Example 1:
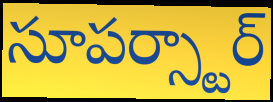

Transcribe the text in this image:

సూపర్స్టార్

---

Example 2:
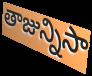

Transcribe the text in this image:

తాజున్నిసా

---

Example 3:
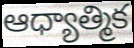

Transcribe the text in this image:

ఆధ్యాత్మిక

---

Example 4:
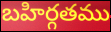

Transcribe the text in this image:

బహిర్గతము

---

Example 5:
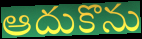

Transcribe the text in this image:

ఆదుకొను